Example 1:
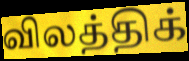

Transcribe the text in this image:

விலத்திக்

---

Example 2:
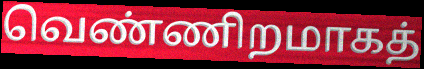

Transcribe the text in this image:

வெண்ணிறமாகத்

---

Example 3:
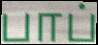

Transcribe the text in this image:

பாப்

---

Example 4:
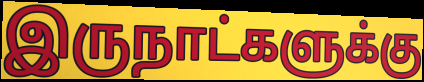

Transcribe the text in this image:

இருநாட்களுக்கு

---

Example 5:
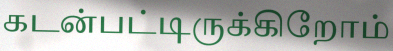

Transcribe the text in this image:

கடன்பட்டிருக்கிறோம்